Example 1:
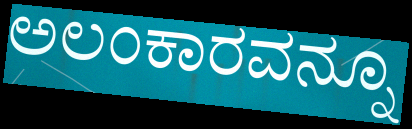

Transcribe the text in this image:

ಅಲಂಕಾರವನ್ನೂ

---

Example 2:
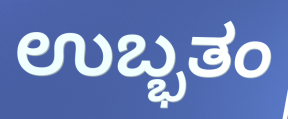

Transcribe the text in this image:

ಉಬ್ಭತಂ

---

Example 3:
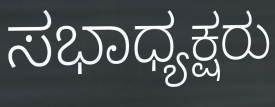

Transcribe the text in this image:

ಸಭಾಧ್ಯಕ್ಷರು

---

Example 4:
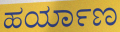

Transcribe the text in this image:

ಹರ್ಯಾಣ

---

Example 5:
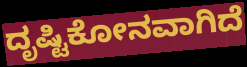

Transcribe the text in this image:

ದೃಷ್ಟಿಕೋನವಾಗಿದೆ